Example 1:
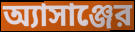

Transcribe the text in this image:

অ্যাসাঞ্জের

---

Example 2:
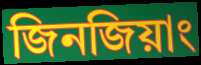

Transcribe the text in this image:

জিনজিয়াং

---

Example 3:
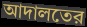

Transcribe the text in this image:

আদালতের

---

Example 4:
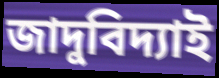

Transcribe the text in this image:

জাদুবিদ্যাই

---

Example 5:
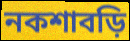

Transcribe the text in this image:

নকশাবড়ি